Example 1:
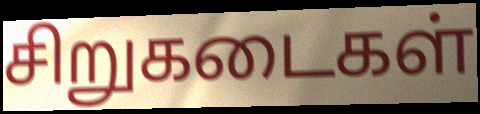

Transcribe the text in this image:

சிறுகடைகள்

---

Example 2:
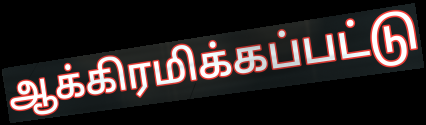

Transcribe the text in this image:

ஆக்கிரமிக்கப்பட்டு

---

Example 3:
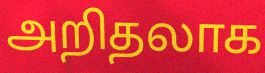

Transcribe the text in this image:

அறிதலாக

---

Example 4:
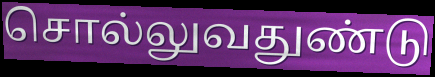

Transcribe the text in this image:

சொல்லுவதுண்டு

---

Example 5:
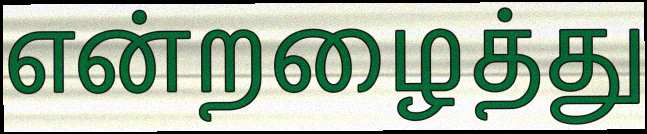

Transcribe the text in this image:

என்றழைத்து